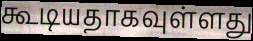
கூடியதாகவுள்ளது